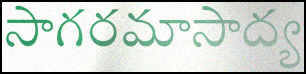
సాగరమాసాద్య